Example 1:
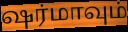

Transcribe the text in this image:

ஷர்மாவும்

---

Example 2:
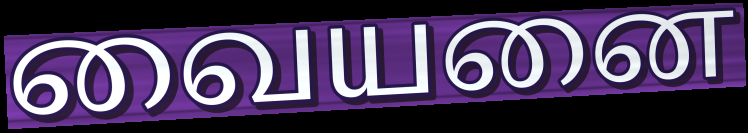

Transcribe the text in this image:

வையனை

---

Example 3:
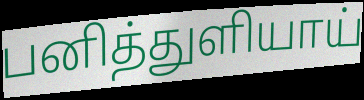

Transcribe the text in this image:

பனித்துளியாய்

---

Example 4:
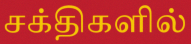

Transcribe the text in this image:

சக்திகளில்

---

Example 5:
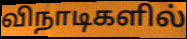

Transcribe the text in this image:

விநாடிகளில்